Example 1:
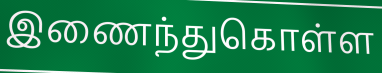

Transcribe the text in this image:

இணைந்துகொள்ள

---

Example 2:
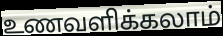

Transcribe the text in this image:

உணவளிக்கலாம்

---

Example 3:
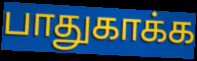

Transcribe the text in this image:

பாதுகாக்க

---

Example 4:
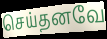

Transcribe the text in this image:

செய்தனவே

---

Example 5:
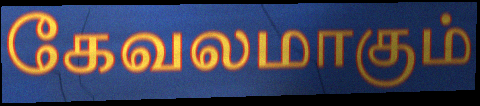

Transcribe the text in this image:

கேவலமாகும்